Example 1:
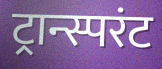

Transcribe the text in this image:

ट्रान्स्परंट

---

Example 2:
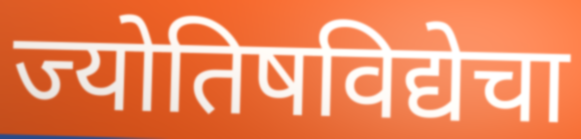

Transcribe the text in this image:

ज्योतिषविद्येचा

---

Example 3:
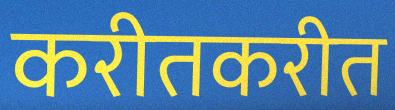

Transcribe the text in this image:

करीतकरीत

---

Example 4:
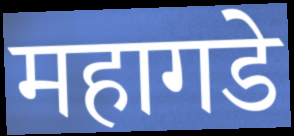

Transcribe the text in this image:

महागडे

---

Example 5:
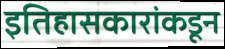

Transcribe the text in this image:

इतिहासकारांकडून